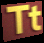
Tt